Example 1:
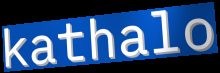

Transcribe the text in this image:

kathalo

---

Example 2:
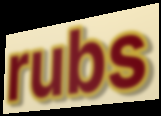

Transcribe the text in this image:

rubs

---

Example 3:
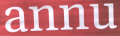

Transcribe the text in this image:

annu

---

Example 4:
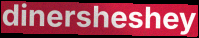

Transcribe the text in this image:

dinersheshey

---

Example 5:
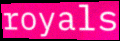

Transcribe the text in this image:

royals